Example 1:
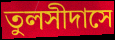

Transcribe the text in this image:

তুলসীদাসে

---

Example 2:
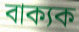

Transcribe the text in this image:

বাক্যক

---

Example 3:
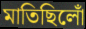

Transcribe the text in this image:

মাতিছিলোঁ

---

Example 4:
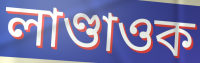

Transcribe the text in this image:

লাণ্ডাওক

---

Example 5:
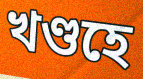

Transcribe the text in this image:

খণ্ডহে